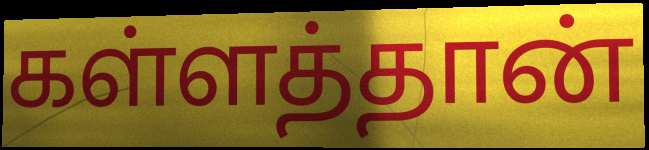
கள்ளத்தான்